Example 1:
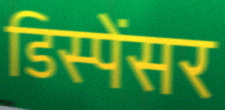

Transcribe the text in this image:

डिस्पेंसर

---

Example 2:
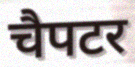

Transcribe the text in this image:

चैपटर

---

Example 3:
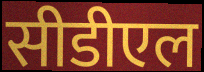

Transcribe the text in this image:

सीडीएल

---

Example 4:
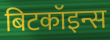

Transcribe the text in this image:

बिटकॉइन्स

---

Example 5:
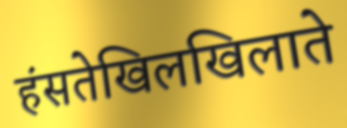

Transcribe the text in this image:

हंसतेखिलखिलाते